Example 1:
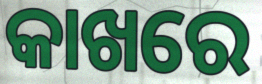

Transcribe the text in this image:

କାଖରେ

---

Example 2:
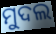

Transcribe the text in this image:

ମୁଦଲ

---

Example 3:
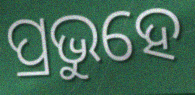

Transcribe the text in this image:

ପ୍ରଭୁହେ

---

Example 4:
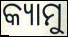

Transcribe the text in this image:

କ୍ୟାମୁ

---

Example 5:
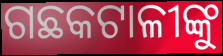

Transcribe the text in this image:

ଗଛକଟାଳୀଙ୍କୁ